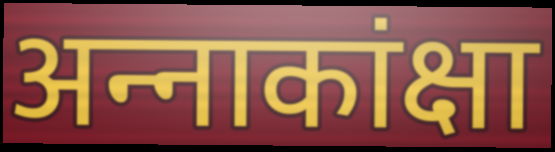
अन्नाकांक्षा